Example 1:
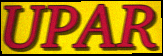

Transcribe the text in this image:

UPAR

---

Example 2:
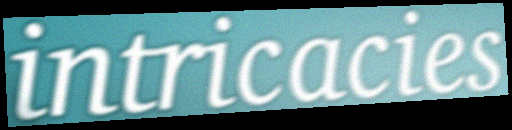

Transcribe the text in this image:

intricacies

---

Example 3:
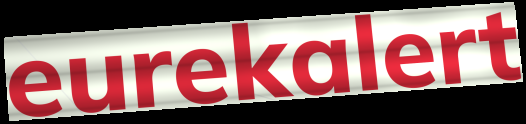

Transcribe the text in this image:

eurekalert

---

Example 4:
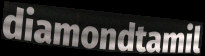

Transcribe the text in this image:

diamondtamil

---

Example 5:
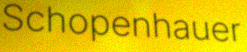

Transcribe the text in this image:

Schopenhauer